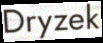
Dryzek